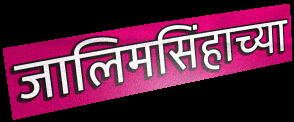
जालिमसिंहाच्या